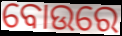
ବୋଉରେ